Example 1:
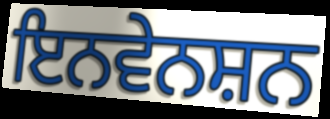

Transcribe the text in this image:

ਇਨਵੇਨਸ਼ਨ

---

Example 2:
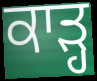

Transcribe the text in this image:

ਕਾੜ੍ਹ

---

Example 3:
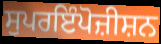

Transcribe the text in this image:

ਸੁਪਰਇੰਪੋਜ਼ੀਸ਼ਨ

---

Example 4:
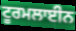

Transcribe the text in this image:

ਟੂਰਮਲਾਈਨ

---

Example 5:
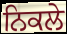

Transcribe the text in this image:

ਨਿਕਲੇ